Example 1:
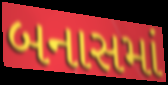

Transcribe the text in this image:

બનાસમાં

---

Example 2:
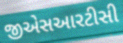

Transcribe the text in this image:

જીએસઆરટીસી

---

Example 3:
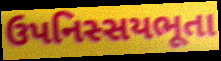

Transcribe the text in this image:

ઉપનિસ્સયભૂતા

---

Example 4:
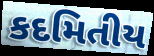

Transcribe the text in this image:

કદમિતીય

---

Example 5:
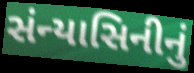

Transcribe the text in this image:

સંન્યાસિનીનું